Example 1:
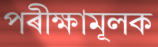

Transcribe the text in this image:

পৰীক্ষামূলক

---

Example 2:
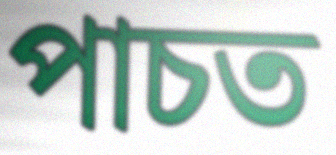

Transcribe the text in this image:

পাচত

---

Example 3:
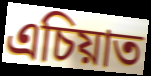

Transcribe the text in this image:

এচিয়াত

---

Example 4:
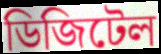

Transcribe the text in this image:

ডিজিটেল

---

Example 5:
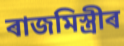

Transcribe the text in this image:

ৰাজমিস্ত্ৰীৰ